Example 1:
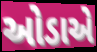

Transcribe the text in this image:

ઓડાએ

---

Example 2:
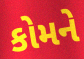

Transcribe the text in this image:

કોમને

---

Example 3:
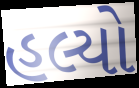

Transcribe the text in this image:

હલ્યો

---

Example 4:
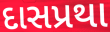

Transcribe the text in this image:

દાસપ્રથા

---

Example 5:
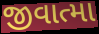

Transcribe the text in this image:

જીવાત્મા